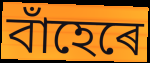
বাঁহেৰে